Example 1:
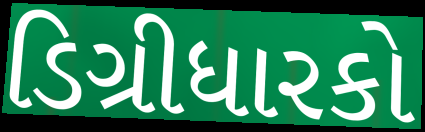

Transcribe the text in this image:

ડિગ્રીધારકો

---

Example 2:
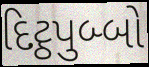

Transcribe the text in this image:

દિટ્ઠપુબ્બો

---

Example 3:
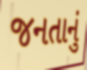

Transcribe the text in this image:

જનતાનું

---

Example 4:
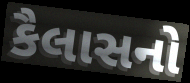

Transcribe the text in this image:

કૈલાસનો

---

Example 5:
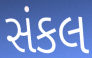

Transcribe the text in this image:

સંકલ